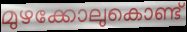
മുഴക്കോലുകൊണ്ട്